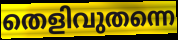
തെളിവുതന്നെ